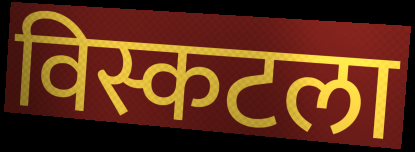
विस्कटला